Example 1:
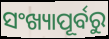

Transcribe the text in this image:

ସଂଖ୍ୟାପୂର୍ବରୁ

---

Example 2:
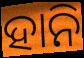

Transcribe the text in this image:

ହାନି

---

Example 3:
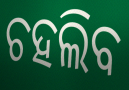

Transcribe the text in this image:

ଚହଲିବ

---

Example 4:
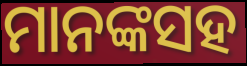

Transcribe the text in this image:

ମାନଙ୍କସହ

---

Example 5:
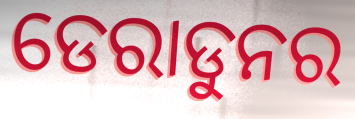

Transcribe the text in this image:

ଡେରାଡୁନର